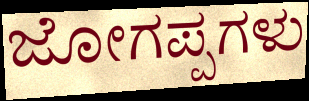
ಜೋಗಪ್ಪಗಳು